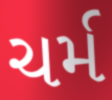
ચર્મ